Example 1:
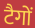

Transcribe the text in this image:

टैगों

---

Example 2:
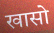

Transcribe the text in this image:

खासो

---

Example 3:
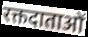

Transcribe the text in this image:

रक्तदाताओं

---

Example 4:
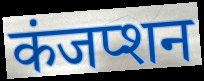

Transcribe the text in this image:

कंजप्शन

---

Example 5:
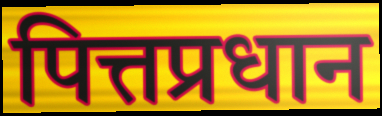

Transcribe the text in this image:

पित्तप्रधान